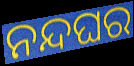
ନନ୍ଦଘର